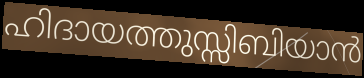
ഹിദായത്തുസ്സിബിയാൻ